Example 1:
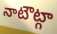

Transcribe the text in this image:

నాటౌట్గా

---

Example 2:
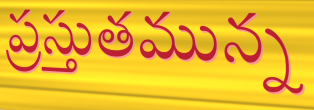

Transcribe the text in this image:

ప్రస్తుతమున్న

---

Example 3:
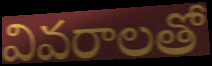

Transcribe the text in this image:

వివరాలతో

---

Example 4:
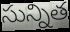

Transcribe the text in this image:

సున్నిత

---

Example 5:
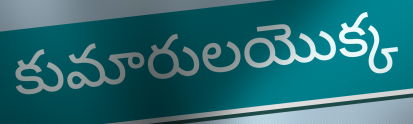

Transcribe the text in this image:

కుమారులయొక్క